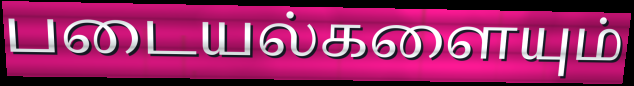
படையல்களையும்